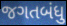
જગતબંધુ